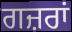
ਗਜ਼ਰਾਂ